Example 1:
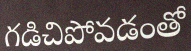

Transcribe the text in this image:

గడిచిపోవడంతో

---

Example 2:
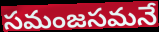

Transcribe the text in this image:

సమంజసమనే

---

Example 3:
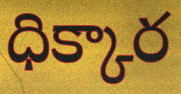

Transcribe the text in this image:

ధిక్కార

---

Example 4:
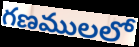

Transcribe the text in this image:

గణములలో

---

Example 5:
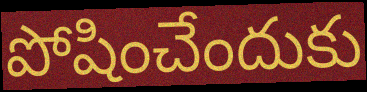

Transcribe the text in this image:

పోషించేందుకు